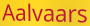
Aalvaars